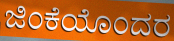
ಜಿಂಕೆಯೊಂದರ